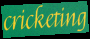
cricketing